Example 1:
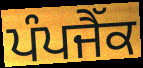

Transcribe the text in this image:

ਪੰਪਜੈੱਕ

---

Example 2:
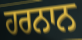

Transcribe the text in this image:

ਹਰਨਾਨ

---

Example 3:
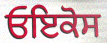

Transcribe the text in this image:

ਓਇਕੋਸ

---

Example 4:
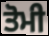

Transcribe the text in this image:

ਤੋਮੀ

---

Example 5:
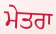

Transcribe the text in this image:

ਮੇਤਰਾ